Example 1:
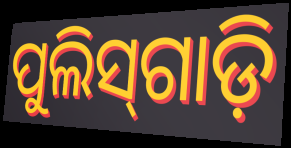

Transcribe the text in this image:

ପୁଲିସ୍‌ଗାଡ଼ି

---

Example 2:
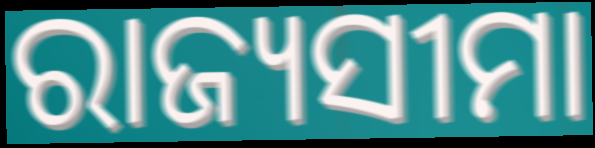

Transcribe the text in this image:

ରାଜ୍ୟସୀମା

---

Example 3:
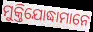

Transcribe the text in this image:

ମୁକ୍ତିଯୋଦ୍ଧାମାନେ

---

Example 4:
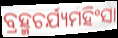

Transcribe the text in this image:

ବ୍ରହ୍ମଚର୍ଯ୍ୟମହିଂସା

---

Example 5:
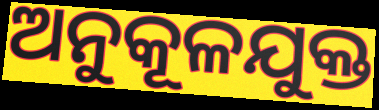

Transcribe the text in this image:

ଅନୁକୂଳଯୁକ୍ତ